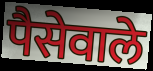
पैसेवाले